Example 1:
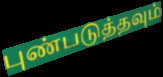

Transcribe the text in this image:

புண்படுத்தவும்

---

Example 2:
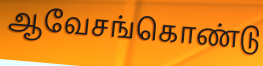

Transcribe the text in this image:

ஆவேசங்கொண்டு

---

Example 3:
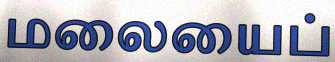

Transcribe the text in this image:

மலையைப்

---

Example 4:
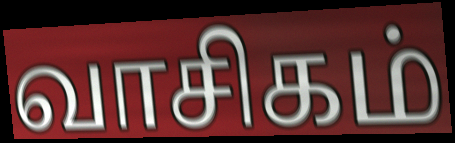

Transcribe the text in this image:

வாசிகம்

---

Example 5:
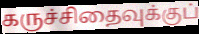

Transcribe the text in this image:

கருச்சிதைவுக்குப்